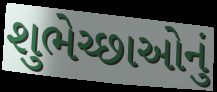
શુભેચ્છાઓનું